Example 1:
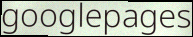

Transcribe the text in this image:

googlepages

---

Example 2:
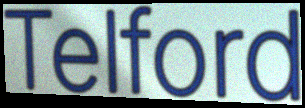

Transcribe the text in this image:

Telford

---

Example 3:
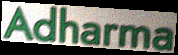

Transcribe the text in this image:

Adharma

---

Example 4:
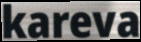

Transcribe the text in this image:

kareva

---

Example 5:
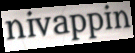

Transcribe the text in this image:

nivappin